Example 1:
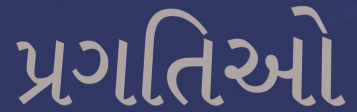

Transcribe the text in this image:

પ્રગતિઓ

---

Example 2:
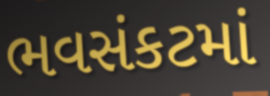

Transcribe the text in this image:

ભવસંકટમાં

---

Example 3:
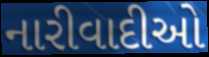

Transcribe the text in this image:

નારીવાદીઓ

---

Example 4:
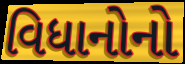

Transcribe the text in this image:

વિધાનોનો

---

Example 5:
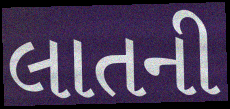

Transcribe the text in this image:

લાતની